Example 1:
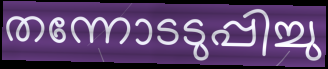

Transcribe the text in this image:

തന്നോടടുപ്പിച്ചു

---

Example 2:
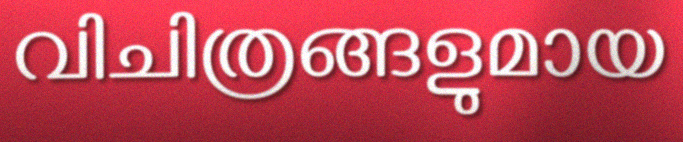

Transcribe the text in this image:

വിചിത്രങ്ങളുമായ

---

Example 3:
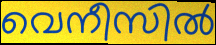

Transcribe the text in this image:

വെനീസിൽ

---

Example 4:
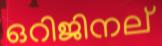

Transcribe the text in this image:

ഒറിജിനല്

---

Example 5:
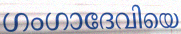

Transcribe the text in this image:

ഗംഗാദേവിയെ